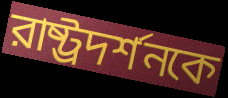
রাষ্ট্রদর্শনকে